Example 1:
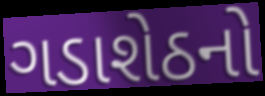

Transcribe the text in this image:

ગડાશેઠનો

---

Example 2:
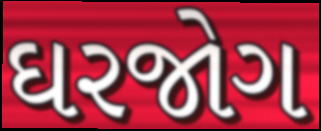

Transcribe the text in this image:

ઘરજોગ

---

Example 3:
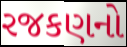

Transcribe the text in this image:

રજકણનો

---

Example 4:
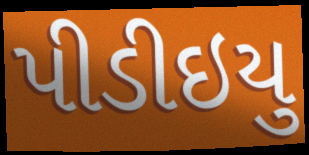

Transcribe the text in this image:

પીડીઇયુ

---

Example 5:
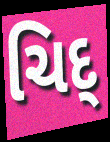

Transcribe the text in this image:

ચિદ્